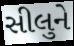
સીલુને